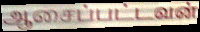
ஆசைப்பட்டவன்